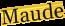
Maude